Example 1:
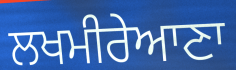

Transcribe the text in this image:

ਲਖਮੀਰੇਆਣਾ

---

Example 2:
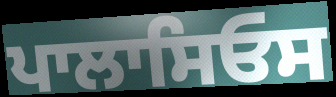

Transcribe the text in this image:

ਪਾਲਾਸਿਓਸ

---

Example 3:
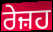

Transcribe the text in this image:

ਰੇਜ਼ਹ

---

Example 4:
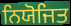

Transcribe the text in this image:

ਨਿਯੋਜਿਤ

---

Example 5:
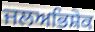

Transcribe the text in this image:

ਜਲਅਭਿਸ਼ੇਕ